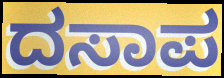
ದಸಾಪ